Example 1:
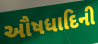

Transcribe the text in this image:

ઔષધાદિની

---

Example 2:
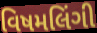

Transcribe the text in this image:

વિષમલિંગી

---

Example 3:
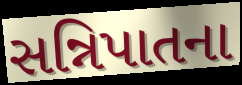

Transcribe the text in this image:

સન્નિપાતના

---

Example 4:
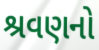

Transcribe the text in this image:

શ્રવણનો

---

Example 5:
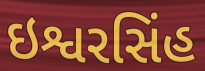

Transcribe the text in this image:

ઇશ્વરસિંહ